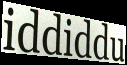
iddiddu